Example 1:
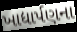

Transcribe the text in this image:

ખાદ્યાર્પણના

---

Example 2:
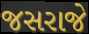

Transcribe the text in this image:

જસરાજે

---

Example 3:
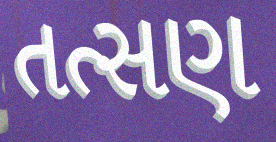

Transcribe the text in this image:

તત્સણ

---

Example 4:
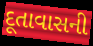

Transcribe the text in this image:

દૂતાવાસની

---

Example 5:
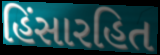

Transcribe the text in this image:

હિંસારહિત